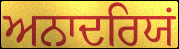
ਅਨਾਦਰਿਯਂ